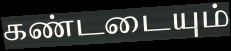
கண்டடையும்